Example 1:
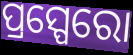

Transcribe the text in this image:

ପ୍ରସ୍ପେରୋ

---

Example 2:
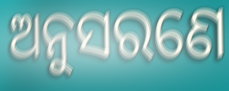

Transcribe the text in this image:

ଅନୁସରଣେ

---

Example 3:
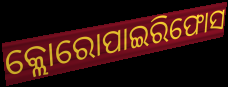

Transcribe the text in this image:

କ୍ଲୋରୋପାଇରିଫୋସ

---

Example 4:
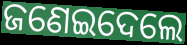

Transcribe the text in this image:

ଜଣେଇଦେଲେ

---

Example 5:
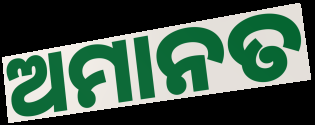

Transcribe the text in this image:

ଅମାନତ